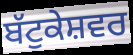
ਬੱਟੁਕੇਸ਼ਵਰ